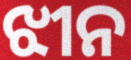
ଝୀନ